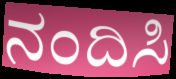
ನಂದಿಸಿ